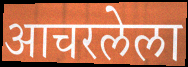
आचरलेला